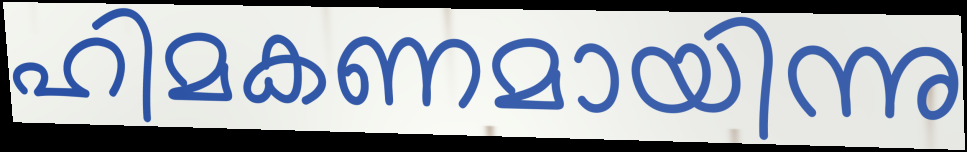
ഹിമകണമായിന്നു